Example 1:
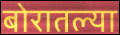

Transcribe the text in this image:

बोरातल्या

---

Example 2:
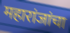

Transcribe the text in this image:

महारांजांचा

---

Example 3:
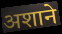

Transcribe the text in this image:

अशाने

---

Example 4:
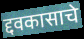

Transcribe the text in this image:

द्दवकासाचे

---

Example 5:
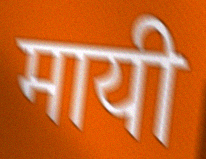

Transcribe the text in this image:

मायी